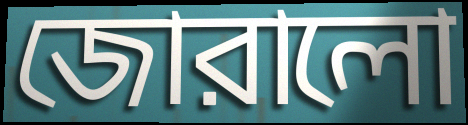
জোরালো